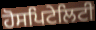
ਹੋਸਪਿਟੇਲਿਟੀ